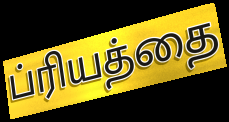
ப்ரியத்தை